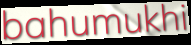
bahumukhi